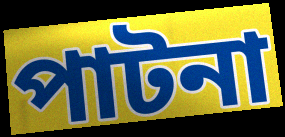
পাটনা